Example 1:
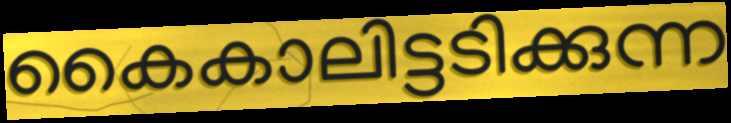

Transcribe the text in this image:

കൈകാലിട്ടടിക്കുന്ന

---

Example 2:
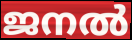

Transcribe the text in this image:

ജനൽ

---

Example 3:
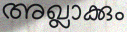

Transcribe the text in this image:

അഖ്ലാക്കും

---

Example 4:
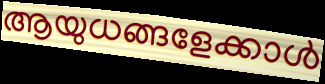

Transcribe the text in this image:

ആയുധങ്ങളേക്കാൾ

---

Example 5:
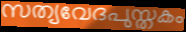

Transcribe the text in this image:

സത്യവേദപുസ്തകം